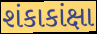
શંકાકાંક્ષા